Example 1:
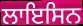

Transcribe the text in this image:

ਲਾਇਸਿਨ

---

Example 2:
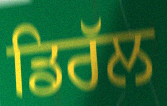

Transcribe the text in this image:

ਡਿਰੱਲ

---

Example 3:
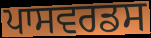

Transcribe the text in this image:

ਪਾਸਵਰਡਸ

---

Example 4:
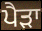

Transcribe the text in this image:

ਪੈੜਾ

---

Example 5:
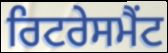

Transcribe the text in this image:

ਰਿਟਰੇਸਮੈਂਟ